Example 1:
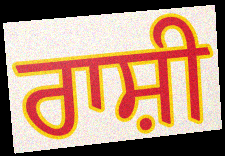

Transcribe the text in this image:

ਰਾਸ਼ੀ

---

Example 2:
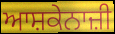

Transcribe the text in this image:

ਆਸ਼ਕੇਨਾਜ਼ੀ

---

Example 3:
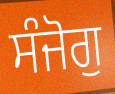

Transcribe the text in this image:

ਸੰਜੋਗੁ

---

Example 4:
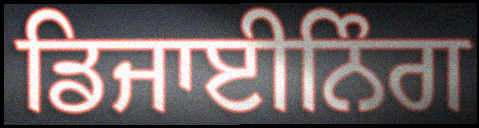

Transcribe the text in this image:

ਡਿਜਾਈਨਿੰਗ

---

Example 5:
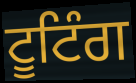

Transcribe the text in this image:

ਟੂਟਿੰਗ